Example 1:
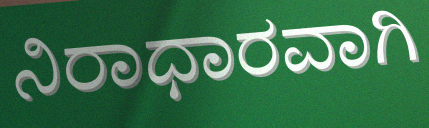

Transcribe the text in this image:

ನಿರಾಧಾರವಾಗಿ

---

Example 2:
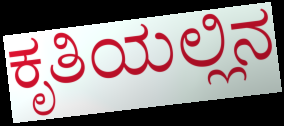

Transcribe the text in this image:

ಕೃತಿಯಲ್ಲಿನ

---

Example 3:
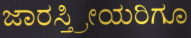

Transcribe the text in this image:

ಜಾರಸ್ತ್ರೀಯರಿಗೂ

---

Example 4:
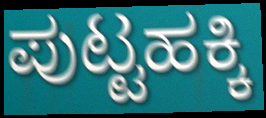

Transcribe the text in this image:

ಪುಟ್ಟಹಕ್ಕಿ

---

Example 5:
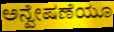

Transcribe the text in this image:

ಅನ್ವೇಷಣೆಯೂ